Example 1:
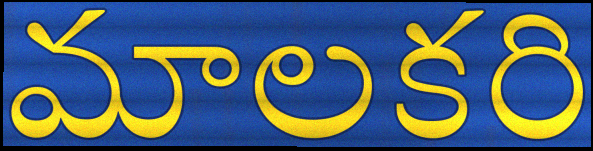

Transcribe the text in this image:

మాలకరి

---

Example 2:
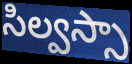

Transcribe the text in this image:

సిల్వస్సా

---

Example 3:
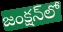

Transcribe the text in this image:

జంక్షన్‌లో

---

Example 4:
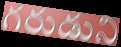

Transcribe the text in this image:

గరుడుని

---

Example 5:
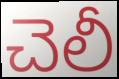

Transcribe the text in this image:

చెలీ